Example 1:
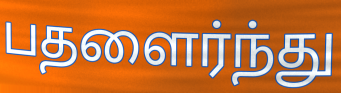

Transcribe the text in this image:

பதளைர்ந்து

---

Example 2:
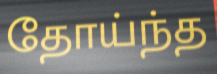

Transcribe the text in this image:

தோய்ந்த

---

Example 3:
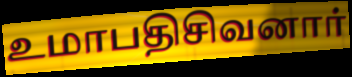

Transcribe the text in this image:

உமாபதிசிவனார்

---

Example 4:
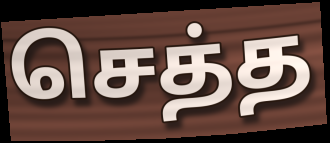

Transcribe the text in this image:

செத்த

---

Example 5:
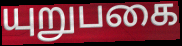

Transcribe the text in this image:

யுறுபகை